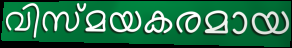
വിസ്മയകരമായ